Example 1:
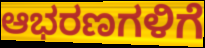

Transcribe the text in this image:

ಆಭರಣಗಳಿಗೆ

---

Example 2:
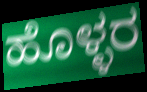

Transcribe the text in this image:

ಹೊಳ್ಳರ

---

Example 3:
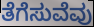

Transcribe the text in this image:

ತೆಗೆಸುವೆವು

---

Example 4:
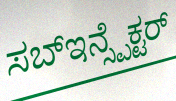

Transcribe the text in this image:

ಸಬ್ಇನ್ಸ್ಪೆಕ್ಟರ್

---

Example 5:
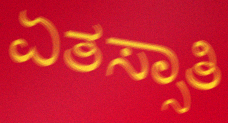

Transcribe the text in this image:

ಏತಸ್ಸಾತಿ